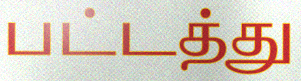
பட்டத்து